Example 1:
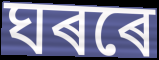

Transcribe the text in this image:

ঘৰৰে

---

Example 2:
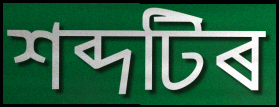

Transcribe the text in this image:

শব্দটিৰ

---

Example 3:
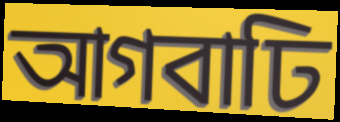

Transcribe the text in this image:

আগবাঢি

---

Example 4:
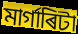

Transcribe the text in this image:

মাৰ্গাৰিটা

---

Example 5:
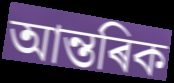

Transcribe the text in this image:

আন্তৰিক